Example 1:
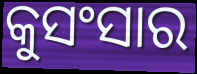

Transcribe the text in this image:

କୁସଂସାର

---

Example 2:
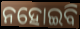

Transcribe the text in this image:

ନହୋଇବି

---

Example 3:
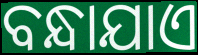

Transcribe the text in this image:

ବନ୍ଧାଯାଏ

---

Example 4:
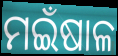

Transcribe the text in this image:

ମଇଁଷାଳ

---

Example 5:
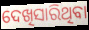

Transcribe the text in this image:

ଦେଖିସାରିଥିବା